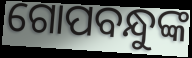
ଗୋପବନ୍ଧୁଙ୍କ